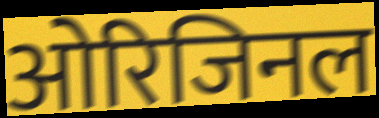
ओरिजिनल